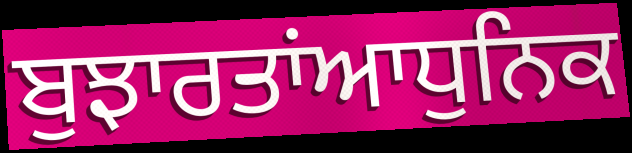
ਬੁਝਾਰਤਾਂਆਧੁਨਿਕ